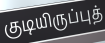
குடியிருப்புத்